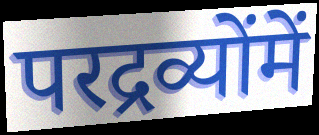
परद्रव्योंमें